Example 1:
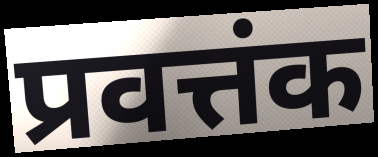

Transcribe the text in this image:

प्रवत्तंक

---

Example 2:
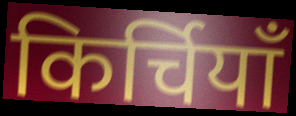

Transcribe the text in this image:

किर्चियाँ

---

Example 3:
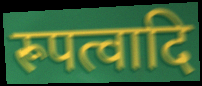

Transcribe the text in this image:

रूपत्वादि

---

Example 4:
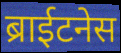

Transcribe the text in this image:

ब्राईटनेस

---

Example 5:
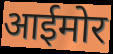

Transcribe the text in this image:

आईमोर